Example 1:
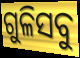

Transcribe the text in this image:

ଗୁଳିସବୁ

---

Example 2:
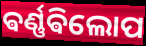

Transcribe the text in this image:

ଵର୍ଣ୍ଣଵିଲୋପ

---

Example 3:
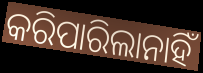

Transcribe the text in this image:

କରିପାରିଲାନାହିଁ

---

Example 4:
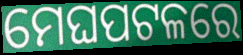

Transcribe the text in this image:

ମେଘପଟଳରେ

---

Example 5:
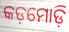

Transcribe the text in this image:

କଡ଼ମୋଡ଼ି